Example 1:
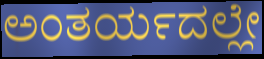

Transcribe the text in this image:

ಅಂತರ್ಯದಲ್ಲೇ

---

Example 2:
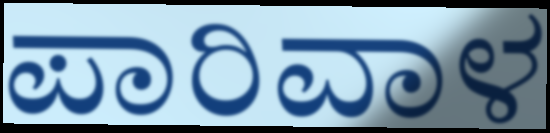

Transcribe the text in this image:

ಪಾರಿವಾಳ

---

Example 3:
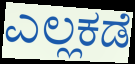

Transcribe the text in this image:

ಎಲ್ಲಕಡೆ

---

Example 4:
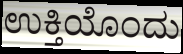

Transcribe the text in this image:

ಉಕ್ತಿಯೊಂದು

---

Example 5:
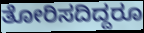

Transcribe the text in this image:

ತೋರಿಸದಿದ್ದರೂ